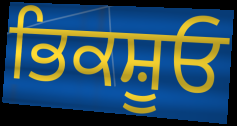
ਭਿਕਸ਼ੂਓ